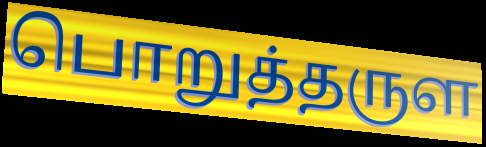
பொறுத்தருள